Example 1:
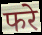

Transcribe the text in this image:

फरे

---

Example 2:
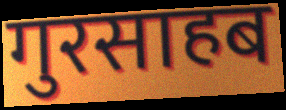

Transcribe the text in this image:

गुरसाहब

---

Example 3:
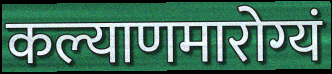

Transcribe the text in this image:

कल्याणमारोग्यं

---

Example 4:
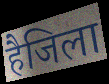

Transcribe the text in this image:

हैजिला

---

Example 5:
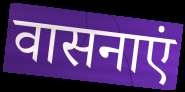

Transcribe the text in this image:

वासनाएं